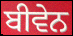
ਬੀਵੇਨ